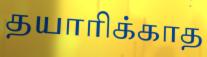
தயாரிக்காத